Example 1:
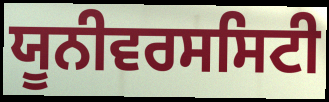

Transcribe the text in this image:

ਯੂਨੀਵਰਸਸਿਟੀ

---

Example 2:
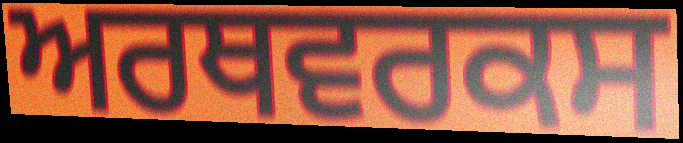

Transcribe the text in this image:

ਅਰਥਵਰਕਸ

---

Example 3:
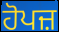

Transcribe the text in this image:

ਹੋਪਜ਼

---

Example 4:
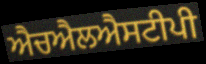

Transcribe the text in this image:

ਐਚਐਲਐਸਟੀਪੀ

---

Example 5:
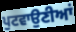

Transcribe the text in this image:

ਪੁਟਵਾਉਣੀਆਂ